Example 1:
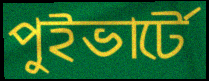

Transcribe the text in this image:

পুইভার্টে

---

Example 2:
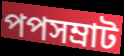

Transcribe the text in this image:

পপসম্রাট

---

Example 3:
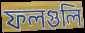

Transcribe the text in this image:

ফলগুলি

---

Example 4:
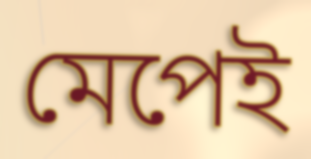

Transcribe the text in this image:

মেপেই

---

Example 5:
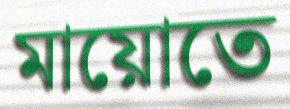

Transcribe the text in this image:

মায়োতে